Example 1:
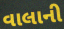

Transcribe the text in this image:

વાલાની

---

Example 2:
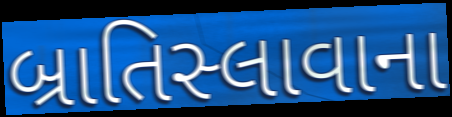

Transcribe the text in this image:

બ્રાતિસ્લાવાના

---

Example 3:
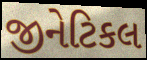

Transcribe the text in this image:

જીનેટિકલ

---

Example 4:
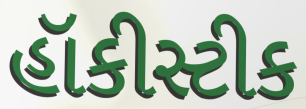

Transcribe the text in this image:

હૉકીસ્ટીક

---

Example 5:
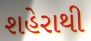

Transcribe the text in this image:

શહેરાથી